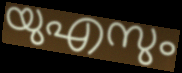
യുഎസും